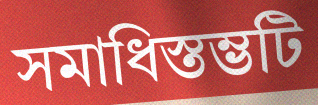
সমাধিস্তম্ভটি